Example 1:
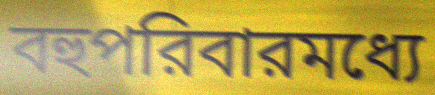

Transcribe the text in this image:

বহুপরিবারমধ্যে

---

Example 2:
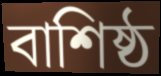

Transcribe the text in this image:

বাশিষ্ঠ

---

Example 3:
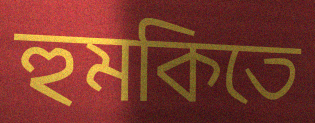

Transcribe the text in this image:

হুমকিতে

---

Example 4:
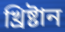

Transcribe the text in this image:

খ্রিষ্টান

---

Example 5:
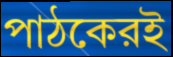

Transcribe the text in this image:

পাঠকেরই